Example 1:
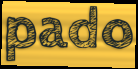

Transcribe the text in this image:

pado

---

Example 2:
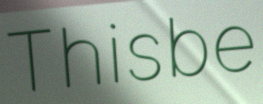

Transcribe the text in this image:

Thisbe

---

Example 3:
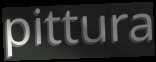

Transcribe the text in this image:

pittura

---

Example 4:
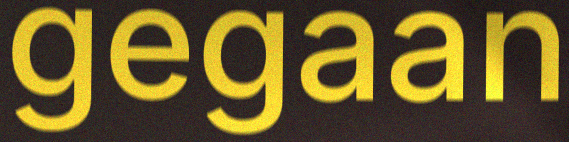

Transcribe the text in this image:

gegaan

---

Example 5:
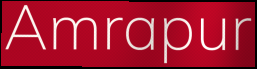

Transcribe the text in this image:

Amrapur